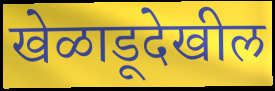
खेळाडूदेखील